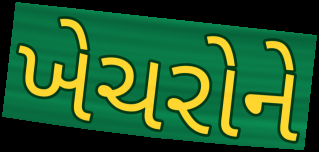
ખેચરોને